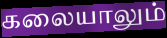
கலையாலும்